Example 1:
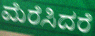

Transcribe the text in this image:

ಮೆರೆಸಿದರೆ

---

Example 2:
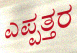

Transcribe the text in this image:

ಎಪ್ಪತ್ತರ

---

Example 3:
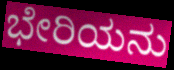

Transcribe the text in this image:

ಭೇರಿಯನು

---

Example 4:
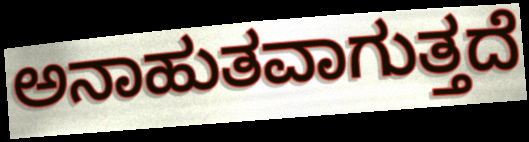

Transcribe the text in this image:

ಅನಾಹುತವಾಗುತ್ತದೆ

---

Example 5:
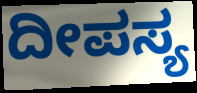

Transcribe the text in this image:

ದೀಪಸ್ಯ